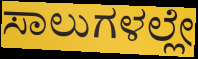
ಸಾಲುಗಳಲ್ಲೇ